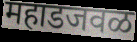
महाडजवळ